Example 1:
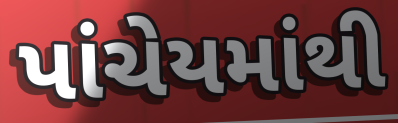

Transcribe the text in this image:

પાંચેયમાંથી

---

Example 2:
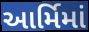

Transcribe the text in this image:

આર્મિમાં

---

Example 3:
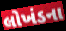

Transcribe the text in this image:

લોખંડના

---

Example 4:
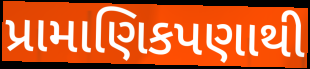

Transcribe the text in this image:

પ્રામાણિકપણાથી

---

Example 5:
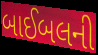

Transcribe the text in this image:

બાઈબલની